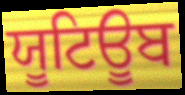
ਯੂਟਿਊਬ